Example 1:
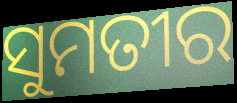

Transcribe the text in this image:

ସୁମତୀର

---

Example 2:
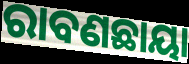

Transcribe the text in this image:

ରାବଣଛାୟା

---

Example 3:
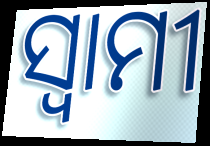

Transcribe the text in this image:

ସ୍ବାମୀ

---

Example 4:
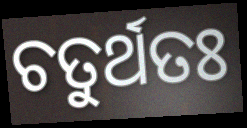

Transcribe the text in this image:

ଚତୁର୍ଥତଃ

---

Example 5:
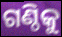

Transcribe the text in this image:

ଗଣ୍ଠିକୁ